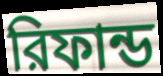
রিফান্ড